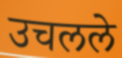
उचलले